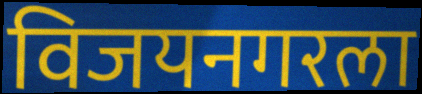
विजयनगरला